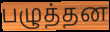
பழுத்தன